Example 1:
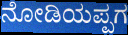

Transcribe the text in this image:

ನೋಡಿಯಪ್ಪಗ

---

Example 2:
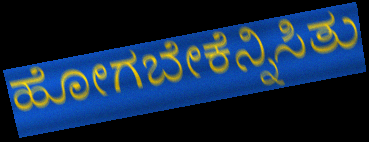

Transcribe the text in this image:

ಹೋಗಬೇಕೆನ್ನಿಸಿತು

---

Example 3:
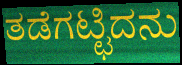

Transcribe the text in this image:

ತಡೆಗಟ್ಟಿದನು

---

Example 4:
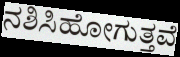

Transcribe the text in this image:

ನಶಿಸಿಹೋಗುತ್ತವೆ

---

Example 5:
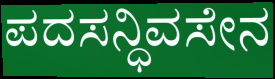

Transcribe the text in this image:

ಪದಸನ್ಧಿವಸೇನ